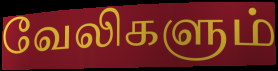
வேலிகளும்